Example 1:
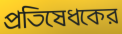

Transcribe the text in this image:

প্রতিষেধকের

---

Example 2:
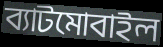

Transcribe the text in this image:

ব্যাটমোবাইল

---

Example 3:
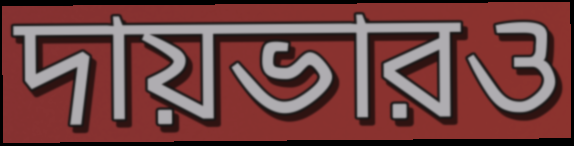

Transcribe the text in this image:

দায়ভারও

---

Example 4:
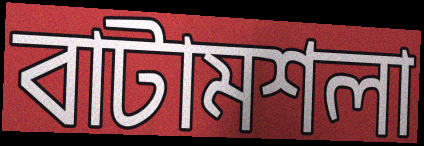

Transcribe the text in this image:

বাটামশলা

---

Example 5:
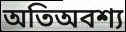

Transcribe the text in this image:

অতিঅবশ্য